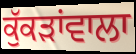
ਕੁੱਕੜਾਂਵਾਲਾ